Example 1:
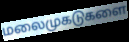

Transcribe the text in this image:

மலைமுகடுகளை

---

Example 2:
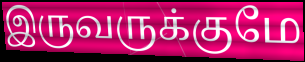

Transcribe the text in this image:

இருவருக்குமே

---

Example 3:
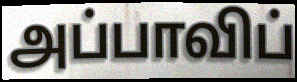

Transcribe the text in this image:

அப்பாவிப்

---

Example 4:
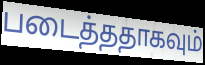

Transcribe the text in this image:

படைத்ததாகவும்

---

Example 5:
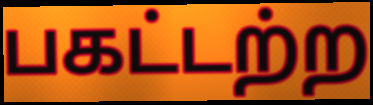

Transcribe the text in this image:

பகட்டற்ற